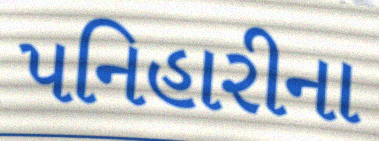
પનિહારીના